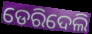
ଡେରିଦେଲି